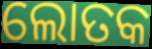
ଲୋତକ